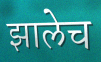
झालेच